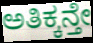
ಅತಿಕ್ಕನ್ತೇ